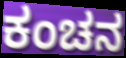
ಕಂಚನ